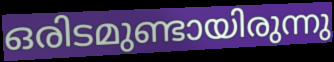
ഒരിടമുണ്ടായിരുന്നു